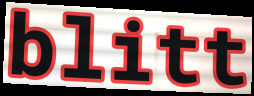
blitt